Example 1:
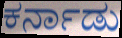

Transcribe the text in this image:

ಕರ್ನಾಡು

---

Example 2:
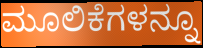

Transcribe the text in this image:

ಮೂಲಿಕೆಗಳನ್ನೂ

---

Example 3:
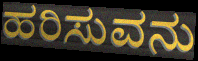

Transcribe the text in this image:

ಹರಿಸುವನು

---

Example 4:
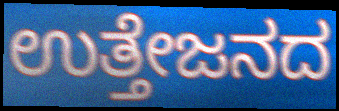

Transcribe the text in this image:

ಉತ್ತೇಜನದ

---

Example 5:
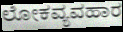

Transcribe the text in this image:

ಲೋಕವ್ಯವಹಾರ